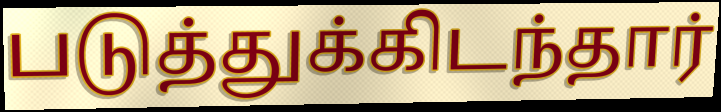
படுத்துக்கிடந்தார்